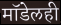
मॉडेलही